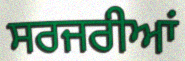
ਸਰਜਰੀਆਂ